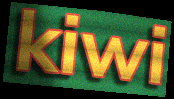
kiwi